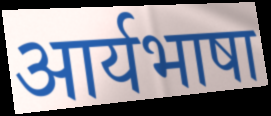
आर्यभाषा